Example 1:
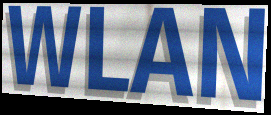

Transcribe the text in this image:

WLAN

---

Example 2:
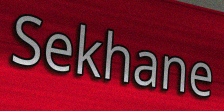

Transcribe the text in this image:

Sekhane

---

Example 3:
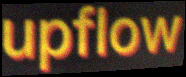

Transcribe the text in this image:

upflow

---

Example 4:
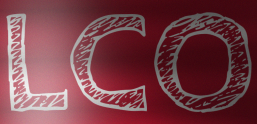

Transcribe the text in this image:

LCO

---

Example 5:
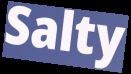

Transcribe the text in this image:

Salty